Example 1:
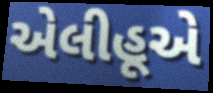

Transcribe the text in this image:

એલીહૂએ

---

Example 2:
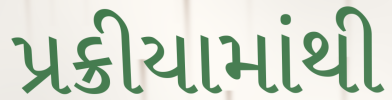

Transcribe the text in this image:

પ્રક્રીયામાંથી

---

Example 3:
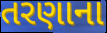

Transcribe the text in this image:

તરણાના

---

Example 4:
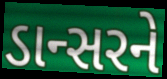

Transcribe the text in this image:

ડાન્સરને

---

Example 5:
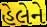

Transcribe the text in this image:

હેલેને